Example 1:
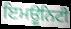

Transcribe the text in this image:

ਇਮਊਨਿਟੀ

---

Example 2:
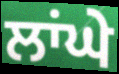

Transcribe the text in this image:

ਲਾਂਘੇ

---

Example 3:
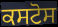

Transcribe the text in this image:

ਕਸਟੋਸ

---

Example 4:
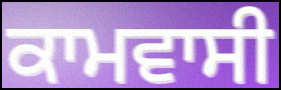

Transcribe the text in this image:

ਕਾਮਵਾਸੀ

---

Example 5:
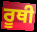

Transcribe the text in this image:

ਰੂਥੀ